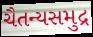
ચૈતન્યસમુદ્ર